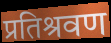
प्रतिश्रवण